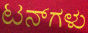
ಟನ್‌ಗಳು